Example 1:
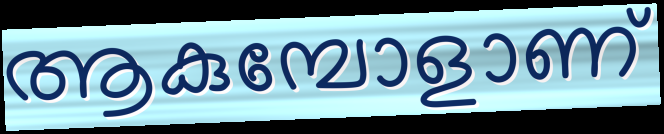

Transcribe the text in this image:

ആകുമ്പോളാണ്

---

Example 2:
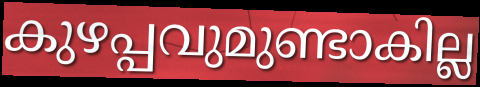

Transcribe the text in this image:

കുഴപ്പവുമുണ്ടാകില്ല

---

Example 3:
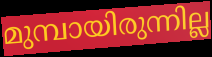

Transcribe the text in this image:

മുമ്പായിരുന്നില്ല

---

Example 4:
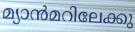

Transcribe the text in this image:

മ്യാൻമറിലേക്കു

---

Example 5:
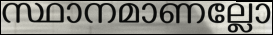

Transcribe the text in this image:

സ്ഥാനമാണല്ലോ